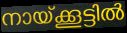
നായ്‌ക്കൂട്ടിൽ